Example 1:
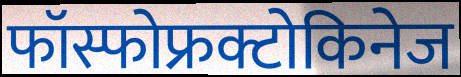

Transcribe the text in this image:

फॉस्फोफ्रक्टोकिनेज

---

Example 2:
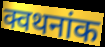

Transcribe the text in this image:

क्वथनांक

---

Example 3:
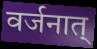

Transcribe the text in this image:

वर्जनात्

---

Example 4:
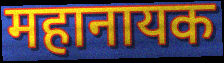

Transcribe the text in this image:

महानायक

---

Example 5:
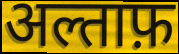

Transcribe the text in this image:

अल्ताफ़